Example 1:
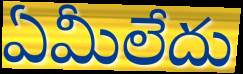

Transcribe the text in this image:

ఏమీలేదు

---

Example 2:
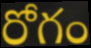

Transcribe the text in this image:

రోగం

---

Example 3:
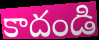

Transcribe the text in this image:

కాదండి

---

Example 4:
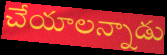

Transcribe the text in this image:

చేయాలన్నాడు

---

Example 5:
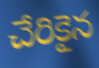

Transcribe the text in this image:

చేరికైన